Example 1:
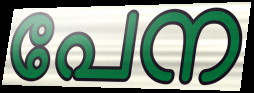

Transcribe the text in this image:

പേന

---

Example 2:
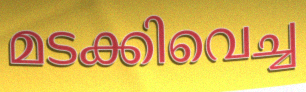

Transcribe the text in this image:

മടക്കിവെച്ച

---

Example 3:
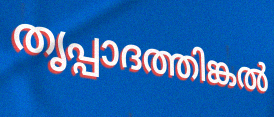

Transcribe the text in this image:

തൃപ്പാദത്തിങ്കൽ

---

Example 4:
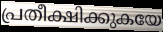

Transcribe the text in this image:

പ്രതീക്ഷിക്കുകയേ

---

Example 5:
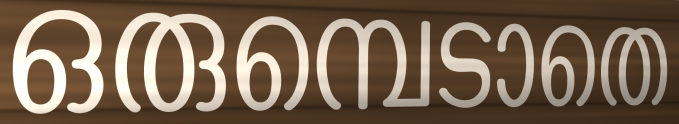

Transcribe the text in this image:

ഒരുമ്പെടാതെ